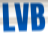
LVB